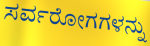
ಸರ್ವರೋಗಗಳನ್ನು